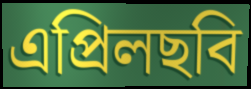
এপ্রিলছবি